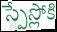
స్పేస్లోకి